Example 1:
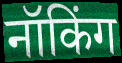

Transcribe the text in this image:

नॉकिंग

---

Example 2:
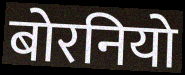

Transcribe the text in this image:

बोरनियो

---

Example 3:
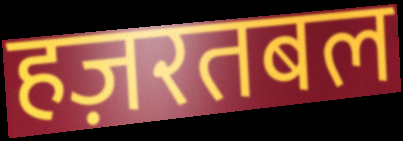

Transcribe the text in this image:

हज़रतबल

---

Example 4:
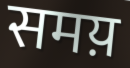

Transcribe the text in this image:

समय़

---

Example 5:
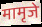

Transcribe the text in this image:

मामृजे